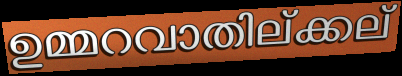
ഉമ്മറവാതില്ക്കല്